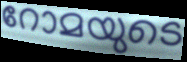
റോമയുടെ